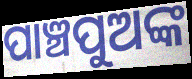
ପାଞ୍ଚପୁଅଙ୍କ